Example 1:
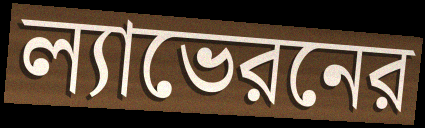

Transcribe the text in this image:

ল্যাভেরনের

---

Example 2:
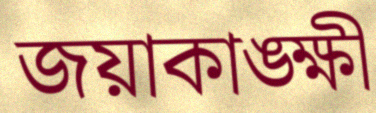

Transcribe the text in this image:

জয়াকাঙ্ক্ষী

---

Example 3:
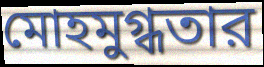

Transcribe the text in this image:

মোহমুগ্ধতার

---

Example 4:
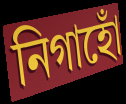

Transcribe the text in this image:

নিগাহোঁ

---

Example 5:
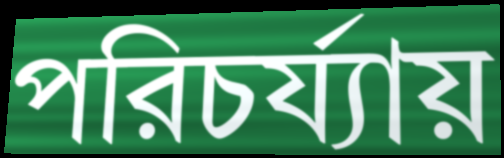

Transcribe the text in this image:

পরিচর্য্যায়